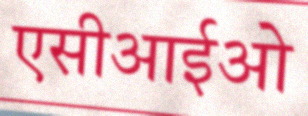
एसीआईओ